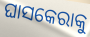
ଘାସକେରାକୁ